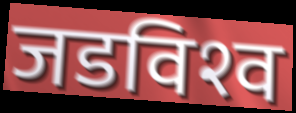
जडविश्व